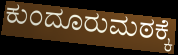
ಕುಂದೂರುಮಠಕ್ಕೆ